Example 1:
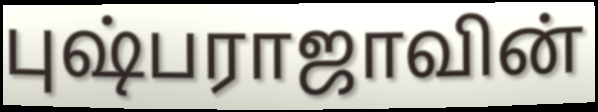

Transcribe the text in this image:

புஷ்பராஜாவின்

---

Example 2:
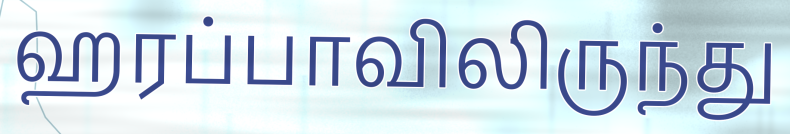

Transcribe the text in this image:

ஹரப்பாவிலிருந்து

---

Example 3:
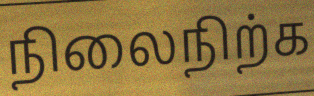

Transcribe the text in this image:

நிலைநிற்க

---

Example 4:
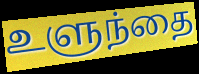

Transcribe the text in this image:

உளுந்தை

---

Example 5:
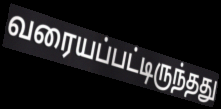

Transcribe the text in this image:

வரையப்பட்டிருந்தது